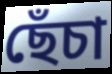
ছেঁচা